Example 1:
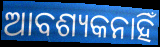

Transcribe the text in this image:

ଆବଶ୍ୟକନାହିଁ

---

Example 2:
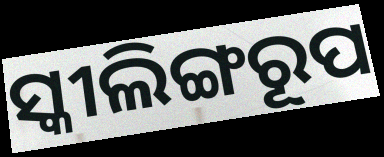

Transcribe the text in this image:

ସ୍କୀଲିଙ୍ଗରୂପ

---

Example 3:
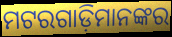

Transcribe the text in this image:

ମଟରଗାଡ଼ିମାନଙ୍କର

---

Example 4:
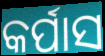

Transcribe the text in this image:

କର୍ପାସ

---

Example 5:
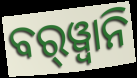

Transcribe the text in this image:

ବର୍‍ୱ୍ୱାନି